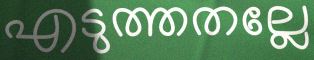
എടുത്തതല്ലേ